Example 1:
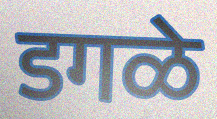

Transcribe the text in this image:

डगळे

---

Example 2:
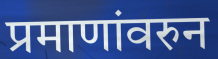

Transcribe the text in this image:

प्रमाणांवरुन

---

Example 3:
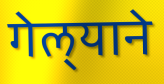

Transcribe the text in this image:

गेल्याने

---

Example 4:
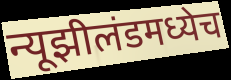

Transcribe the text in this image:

न्यूझीलंडमध्येच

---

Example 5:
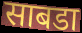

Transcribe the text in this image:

साबडा